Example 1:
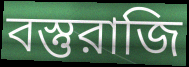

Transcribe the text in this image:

বস্তুরাজি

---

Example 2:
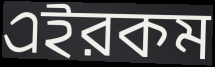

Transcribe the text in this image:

এইরকম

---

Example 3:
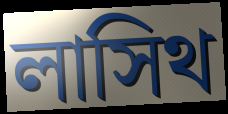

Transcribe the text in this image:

লাসিথ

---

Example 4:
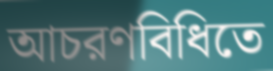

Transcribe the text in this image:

আচরণবিধিতে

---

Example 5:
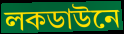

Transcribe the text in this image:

লকডাউনে